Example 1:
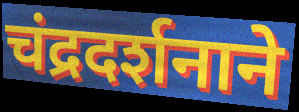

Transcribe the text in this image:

चंद्रदर्शनाने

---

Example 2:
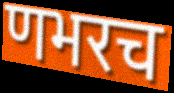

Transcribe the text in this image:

णभरच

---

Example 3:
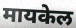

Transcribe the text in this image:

मायकेल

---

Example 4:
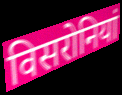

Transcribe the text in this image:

विसरोनियां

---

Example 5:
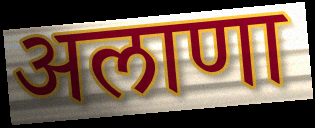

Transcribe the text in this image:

अलाणा